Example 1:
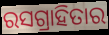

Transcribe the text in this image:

ରସଗ୍ରାହିତାର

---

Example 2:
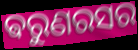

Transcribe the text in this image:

ଵରୁଣରସର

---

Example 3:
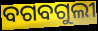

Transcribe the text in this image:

ବଗବଗୁଲୀ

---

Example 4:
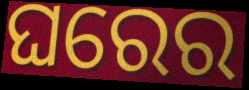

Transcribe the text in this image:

ଘରେର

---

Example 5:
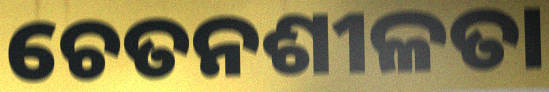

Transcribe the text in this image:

ଚେତନଶୀଳତା